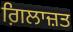
ਗ਼ਿਲਾਜ਼ਤ